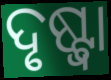
ଦୃଷ୍ଟ୍ବା